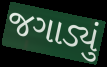
જગાડ્યું